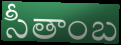
సీతాంబ